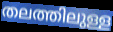
തലത്തിലുള്ള